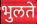
भुलते